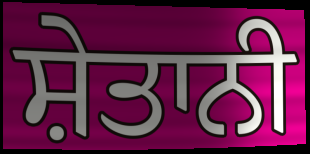
ਸ਼ੇਤਾਨੀ